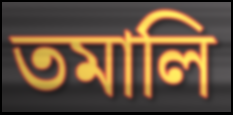
তমালি